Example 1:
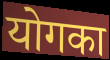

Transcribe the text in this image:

योगका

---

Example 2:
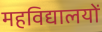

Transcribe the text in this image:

महविद्यालयों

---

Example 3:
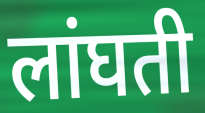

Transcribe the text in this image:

लांघती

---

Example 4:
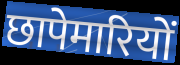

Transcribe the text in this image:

छापेमारियों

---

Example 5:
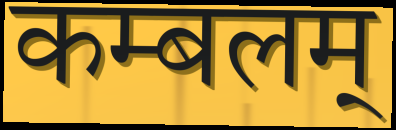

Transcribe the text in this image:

कम्बलम्